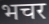
भचर